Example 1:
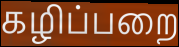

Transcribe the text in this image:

கழிப்பறை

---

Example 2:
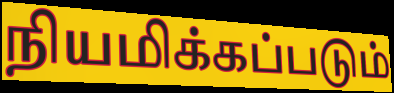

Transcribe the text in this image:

நியமிக்கப்படும்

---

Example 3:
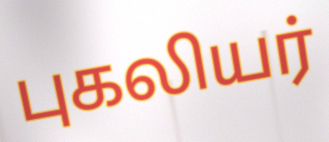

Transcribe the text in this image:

புகலியர்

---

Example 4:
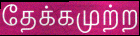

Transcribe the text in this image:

தேக்கமுற்ற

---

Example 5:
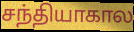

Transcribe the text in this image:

சந்தியாகால